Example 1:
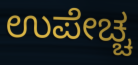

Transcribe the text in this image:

ಉಪೇಚ್ಚ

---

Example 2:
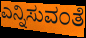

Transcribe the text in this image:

ಎನ್ನಿಸುವಂತೆ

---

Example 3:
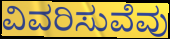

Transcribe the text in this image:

ವಿವರಿಸುವೆವು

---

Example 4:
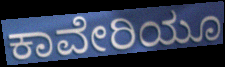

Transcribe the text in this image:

ಕಾವೇರಿಯೂ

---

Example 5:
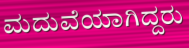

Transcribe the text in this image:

ಮದುವೆಯಾಗಿದ್ದರು